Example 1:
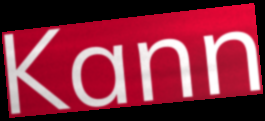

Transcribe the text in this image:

Kann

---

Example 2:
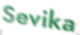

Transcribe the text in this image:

Sevika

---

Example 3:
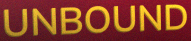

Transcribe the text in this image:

UNBOUND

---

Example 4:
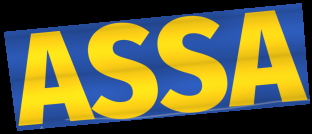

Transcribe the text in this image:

ASSA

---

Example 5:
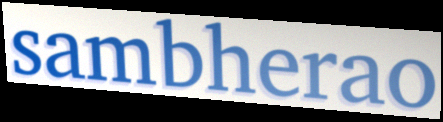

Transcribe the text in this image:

sambherao